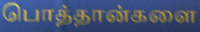
பொத்தான்களை